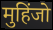
मुहिंजो